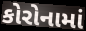
કોરોનામાં